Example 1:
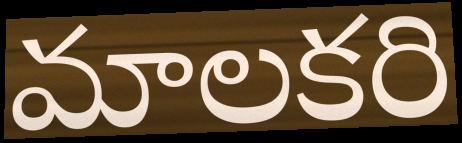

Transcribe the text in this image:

మాలకరి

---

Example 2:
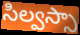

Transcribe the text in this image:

సిల్వస్సా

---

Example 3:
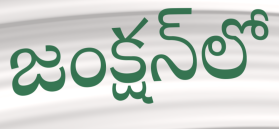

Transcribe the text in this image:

జంక్షన్‌లో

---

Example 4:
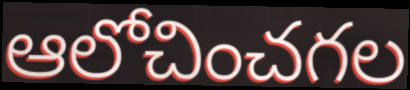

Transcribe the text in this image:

ఆలోచించగల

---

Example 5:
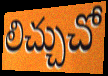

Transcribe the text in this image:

లిచ్చుచో